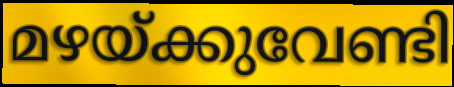
മഴയ്ക്കുവേണ്ടി